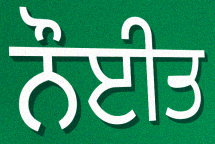
ਨੌਈਤ